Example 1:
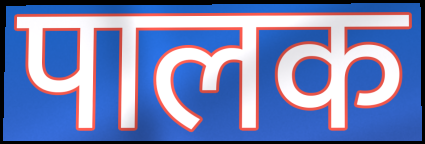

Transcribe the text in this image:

पालक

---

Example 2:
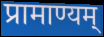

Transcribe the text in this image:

प्रामाण्यम्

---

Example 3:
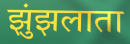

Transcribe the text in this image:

झुंझलाता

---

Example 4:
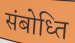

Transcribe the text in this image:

संबोध्ति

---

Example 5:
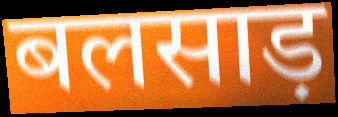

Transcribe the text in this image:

बलसाड़